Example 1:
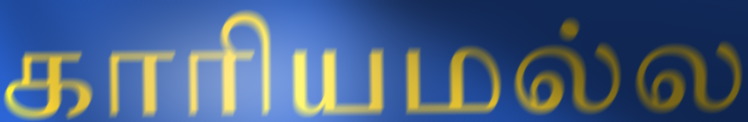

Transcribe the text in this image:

காரியமல்ல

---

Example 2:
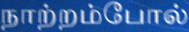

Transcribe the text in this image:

நாற்றம்போல்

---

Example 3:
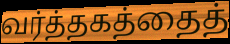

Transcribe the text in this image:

வர்த்தகத்தைத்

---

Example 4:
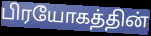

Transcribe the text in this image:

பிரயோகத்தின்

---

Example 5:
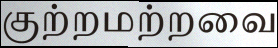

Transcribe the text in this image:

குற்றமற்றவை